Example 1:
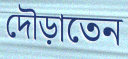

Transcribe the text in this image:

দৌড়াতেন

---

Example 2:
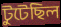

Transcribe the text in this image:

টুটেছিল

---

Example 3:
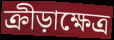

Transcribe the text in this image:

ক্রীড়াক্ষেত্র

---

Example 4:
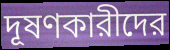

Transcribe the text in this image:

দূষণকারীদের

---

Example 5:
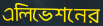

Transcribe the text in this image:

এলিভেশনের